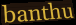
banthu